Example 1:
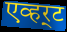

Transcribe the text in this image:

एव्हर्ट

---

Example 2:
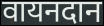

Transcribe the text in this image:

वायनदान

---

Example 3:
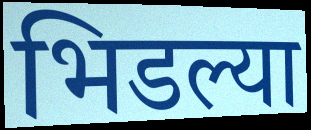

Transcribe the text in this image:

भिडल्या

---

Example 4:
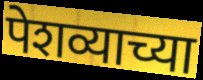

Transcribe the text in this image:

पेशव्याच्या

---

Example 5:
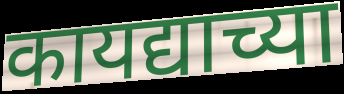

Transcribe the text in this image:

कायद्याच्या